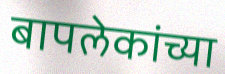
बापलेकांच्या